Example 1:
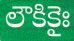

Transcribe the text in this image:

లౌకికైః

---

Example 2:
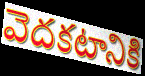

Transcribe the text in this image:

వెదకటానికి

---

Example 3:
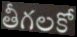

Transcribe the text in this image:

తీగలకో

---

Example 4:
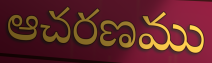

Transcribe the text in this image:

ఆచరణము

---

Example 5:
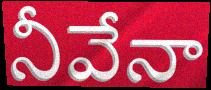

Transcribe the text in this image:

నీవేనా